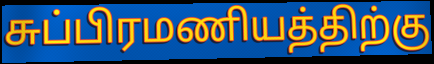
சுப்பிரமணியத்திற்கு